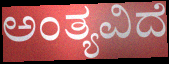
ಅಂತ್ಯವಿದೆ